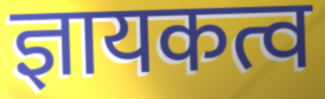
ज्ञायकत्व